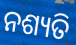
ନଶ୍ୟତି